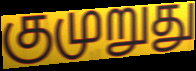
குமுறுது